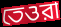
তেওরা